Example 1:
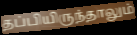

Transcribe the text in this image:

தப்பியிருந்தாலும்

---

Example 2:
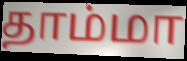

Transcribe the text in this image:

தாம்மா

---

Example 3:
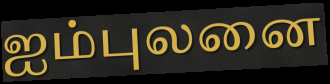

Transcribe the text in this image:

ஐம்புலனை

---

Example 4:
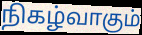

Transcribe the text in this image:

நிகழ்வாகும்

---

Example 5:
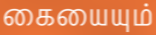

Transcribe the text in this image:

கையையும்